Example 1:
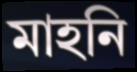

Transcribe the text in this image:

মাহনি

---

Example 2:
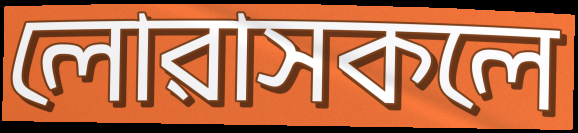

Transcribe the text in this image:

লোৱাসকলে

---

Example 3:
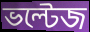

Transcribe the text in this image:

ভল্টেজ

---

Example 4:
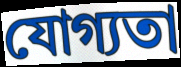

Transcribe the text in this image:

যোগ্য়তা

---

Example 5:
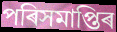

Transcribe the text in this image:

পৰিসমাপ্তিৰ